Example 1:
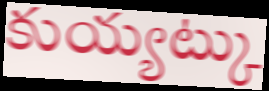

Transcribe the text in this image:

కుయ్యట్కు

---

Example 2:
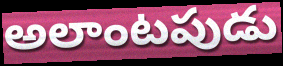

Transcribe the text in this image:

అలాంటపుడు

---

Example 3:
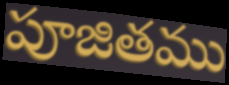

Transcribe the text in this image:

పూజితము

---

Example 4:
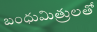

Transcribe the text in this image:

బంధుమిత్రులతో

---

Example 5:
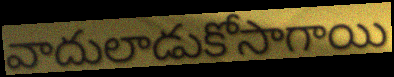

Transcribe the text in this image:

వాదులాడుకోసాగాయి